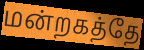
மன்றகத்தே